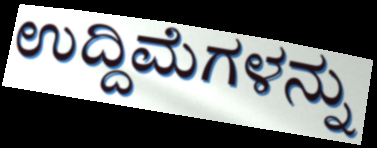
ಉದ್ದಿಮೆಗಳನ್ನು